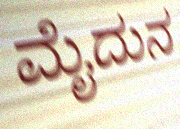
ಮೈದುನ